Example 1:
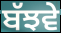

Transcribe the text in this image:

ਬੱਝਵੇ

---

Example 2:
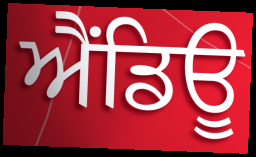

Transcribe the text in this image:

ਐਂਡਿਊ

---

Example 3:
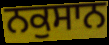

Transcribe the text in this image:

ਨਕੁਸਾਨ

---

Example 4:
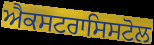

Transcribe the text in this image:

ਐਕਸਟਰਾਸਿਸਟੋਲ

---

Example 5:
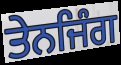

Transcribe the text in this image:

ਤੇਨਜਿੰਗ